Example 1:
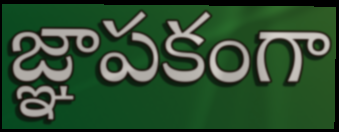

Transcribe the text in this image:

జ్ఞాపకంగా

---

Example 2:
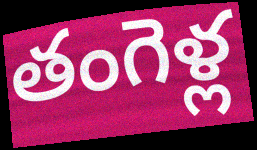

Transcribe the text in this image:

తంగెళ్ల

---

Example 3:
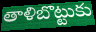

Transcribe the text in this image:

తాళిబొట్టుకు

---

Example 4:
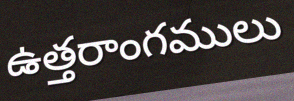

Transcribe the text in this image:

ఉత్తరాంగములు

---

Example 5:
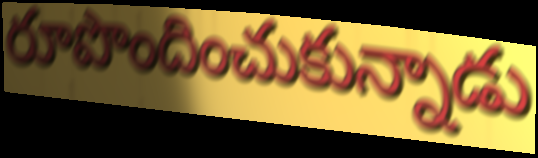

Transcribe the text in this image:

రూపొందించుకున్నాడు